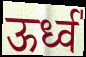
ऊर्ध्व॑